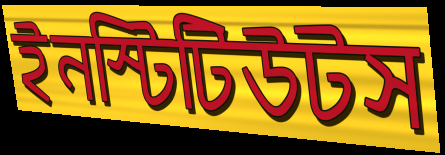
ইনস্টিটিউটস